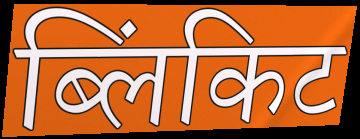
ब्लिंकिट